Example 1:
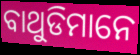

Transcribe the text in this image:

ବାଥୁଡିମାନେ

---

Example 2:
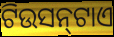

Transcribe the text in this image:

ଟିଉସନ୍‍ଟାଏ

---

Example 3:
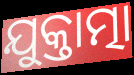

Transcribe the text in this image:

ଯୁକ୍ତାତ୍ମା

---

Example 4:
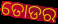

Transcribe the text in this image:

ତୋଡର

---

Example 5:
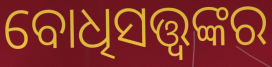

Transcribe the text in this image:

ବୋଧିସତ୍ତ୍ଵଙ୍କର